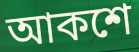
আকশে